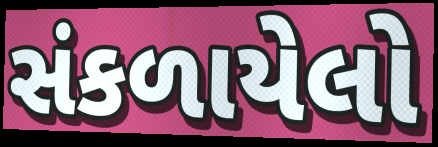
સંકળાયેલો